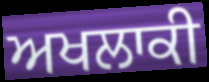
ਅਖਲਾਕੀ